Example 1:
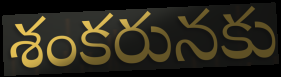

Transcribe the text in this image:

శంకరునకు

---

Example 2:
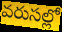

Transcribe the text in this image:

వరుసల్లో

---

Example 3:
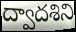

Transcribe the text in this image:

ద్వాదశిని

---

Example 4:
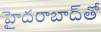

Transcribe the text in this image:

హైదరాబాద్‌తో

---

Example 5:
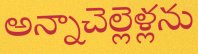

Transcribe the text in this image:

అన్నాచెల్లెళ్లను